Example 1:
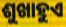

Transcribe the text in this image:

ଶୁଖାହୁଏ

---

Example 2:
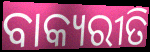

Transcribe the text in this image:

ବାକ୍ୟରୀତି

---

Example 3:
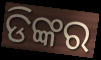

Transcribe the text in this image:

ଡିଙ୍କର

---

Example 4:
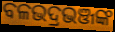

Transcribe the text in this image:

ବଳଭଦ୍ରଭଞ୍ଜଙ୍କ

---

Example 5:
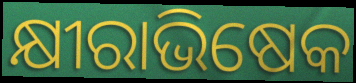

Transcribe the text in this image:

କ୍ଷୀରାଭିଷେକ